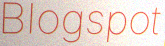
Blogspot